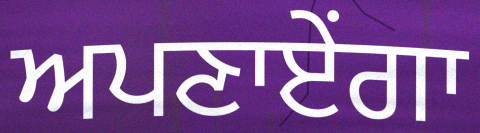
ਅਪਣਾਏਂਗਾ